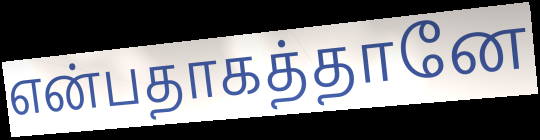
என்பதாகத்தானே